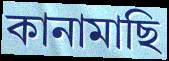
কানামাছি